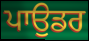
ਪਾਉਡਰ